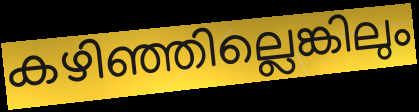
കഴിഞ്ഞില്ലെങ്കിലും